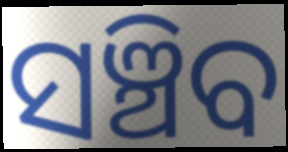
ସଞ୍ଚିବ